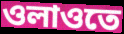
ওলাওতে